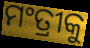
ମଂତ୍ରୀକୁ